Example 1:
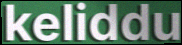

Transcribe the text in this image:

keliddu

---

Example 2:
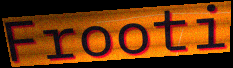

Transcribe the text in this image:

Frooti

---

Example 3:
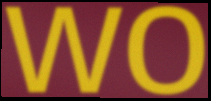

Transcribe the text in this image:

wo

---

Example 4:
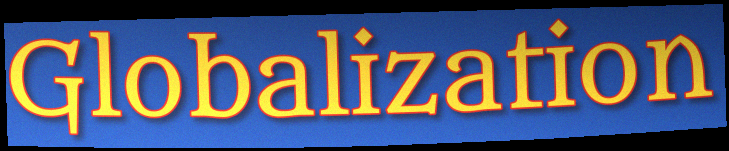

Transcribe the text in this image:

Globalization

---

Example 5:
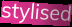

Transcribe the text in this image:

stylised